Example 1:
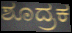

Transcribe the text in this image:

ಶೂದ್ರಕ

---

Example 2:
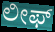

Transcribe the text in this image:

ಲೀಫ್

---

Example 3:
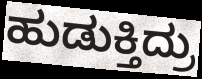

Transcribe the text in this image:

ಹುಡುಕ್ತಿದ್ರು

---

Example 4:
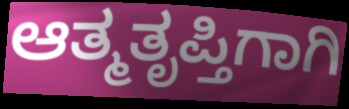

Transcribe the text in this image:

ಆತ್ಮತೃಪ್ತಿಗಾಗಿ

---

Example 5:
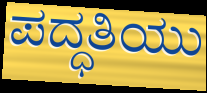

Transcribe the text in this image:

ಪದ್ಧತಿಯು